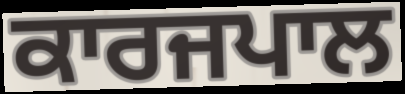
ਕਾਰਜਪਾਲ